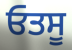
ਓਤਸੂ